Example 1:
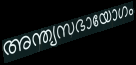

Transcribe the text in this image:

അന്ത്യസഭായോഗം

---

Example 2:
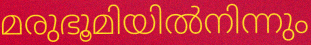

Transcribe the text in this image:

മരുഭൂമിയിൽനിന്നും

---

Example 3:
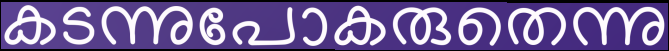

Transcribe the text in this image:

കടന്നുപോകരുതെന്നു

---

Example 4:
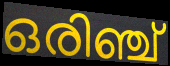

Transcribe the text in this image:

ഒരിഞ്ച്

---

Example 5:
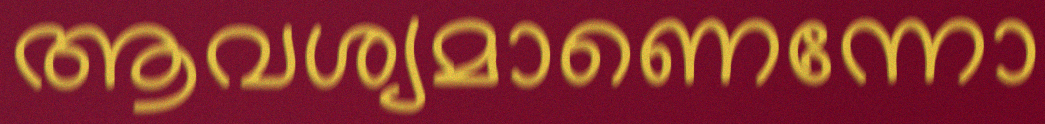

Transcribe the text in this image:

ആവശ്യമാണെന്നോ